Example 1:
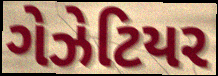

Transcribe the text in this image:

ગેઝેટિયર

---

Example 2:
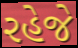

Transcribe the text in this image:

રહેજે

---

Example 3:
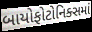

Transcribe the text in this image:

બાયોફોટોનિક્સમાં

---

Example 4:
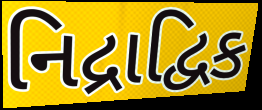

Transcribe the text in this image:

નિદ્રાદ્વિક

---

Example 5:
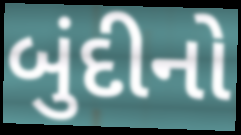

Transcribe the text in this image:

બુંદીનો